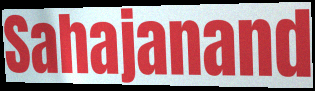
Sahajanand